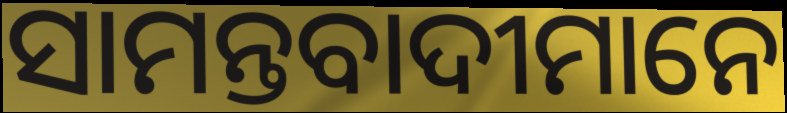
ସାମନ୍ତବାଦୀମାନେ